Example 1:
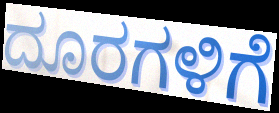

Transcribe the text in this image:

ದೂರಗಳಿಗೆ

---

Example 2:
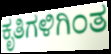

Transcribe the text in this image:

ಕೃತಿಗಳಿಗಿಂತ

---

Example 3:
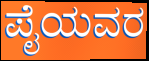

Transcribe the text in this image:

ಪೈಯವರ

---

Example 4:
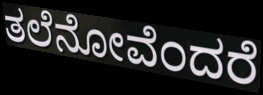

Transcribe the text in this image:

ತಲೆನೋವೆಂದರೆ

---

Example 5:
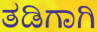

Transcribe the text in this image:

ತಡಿಗಾಗಿ